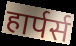
हार्पर्स